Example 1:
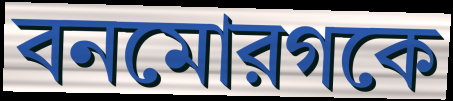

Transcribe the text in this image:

বনমোরগকে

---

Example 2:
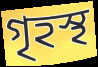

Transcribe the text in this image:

গৃহস্থ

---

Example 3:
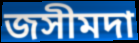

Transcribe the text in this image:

জসীমদা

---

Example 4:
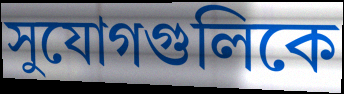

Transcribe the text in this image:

সুযোগগুলিকে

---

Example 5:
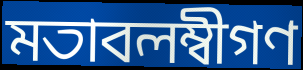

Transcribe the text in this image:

মতাবলম্বীগণ